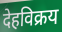
देहविक्रय